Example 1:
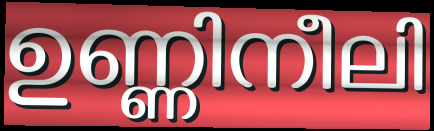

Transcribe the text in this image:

ഉണ്ണിനീലി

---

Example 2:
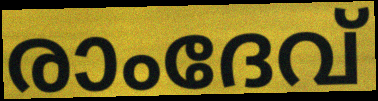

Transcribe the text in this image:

രാംദേവ്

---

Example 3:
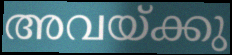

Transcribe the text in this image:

അവയ്ക്കു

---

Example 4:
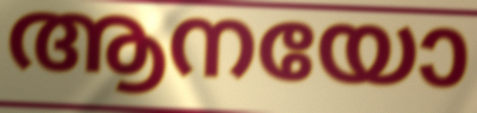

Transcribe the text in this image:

ആനയോ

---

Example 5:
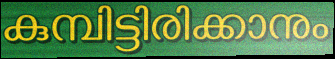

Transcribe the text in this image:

കുമ്പിട്ടിരിക്കാനും